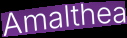
Amalthea